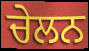
ਚੇਲਨ